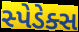
સ્પેડેક્સ